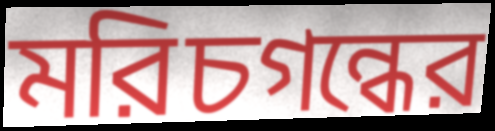
মরিচগন্ধের